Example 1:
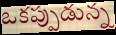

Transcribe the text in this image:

ఒకప్పుడున్న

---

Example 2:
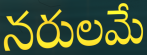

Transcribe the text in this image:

నరులమే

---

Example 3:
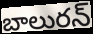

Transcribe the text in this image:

బాలురన్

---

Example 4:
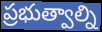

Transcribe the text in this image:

ప్రభుత్వాల్ని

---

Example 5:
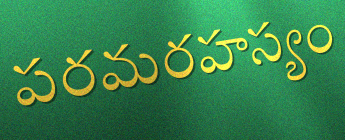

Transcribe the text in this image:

పరమరహస్యం